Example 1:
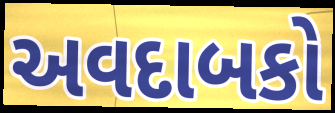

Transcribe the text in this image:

અવદાબકો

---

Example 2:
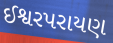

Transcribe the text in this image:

ઈશ્વરપરાયણ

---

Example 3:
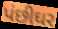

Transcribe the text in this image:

પંછીઘર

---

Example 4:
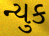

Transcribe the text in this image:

ન્યુક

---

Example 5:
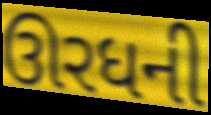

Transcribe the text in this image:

ઊરધની